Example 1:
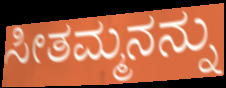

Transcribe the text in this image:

ಸೀತಮ್ಮನನ್ನು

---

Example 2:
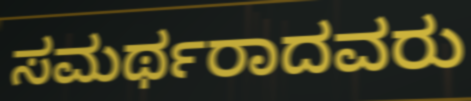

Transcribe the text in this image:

ಸಮರ್ಥರಾದವರು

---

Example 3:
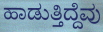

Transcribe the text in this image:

ಹಾಡುತ್ತಿದ್ದೆವು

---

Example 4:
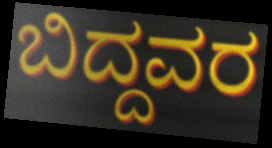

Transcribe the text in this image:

ಬಿದ್ದವರ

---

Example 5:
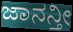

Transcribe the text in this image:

ಜಾನನ್ತೀ